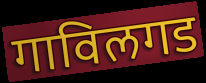
गाविलगड